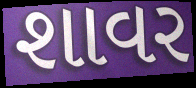
શાવર